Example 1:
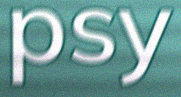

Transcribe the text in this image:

psy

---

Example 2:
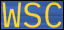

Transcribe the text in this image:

WSC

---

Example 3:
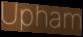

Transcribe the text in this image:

Upham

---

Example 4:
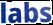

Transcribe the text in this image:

labs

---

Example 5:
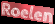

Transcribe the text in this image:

Roelen